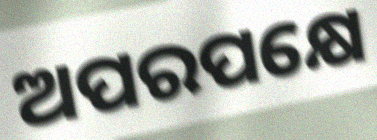
ଅପରପକ୍ଷେ